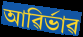
আৱিৰ্ভাৱ